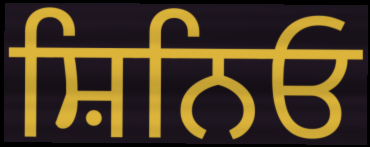
ਸ਼ਿਨਿਓ